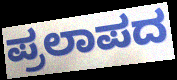
ಪ್ರಲಾಪದ